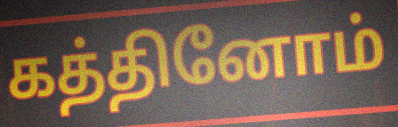
கத்தினோம்